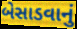
બેસાડવાનું